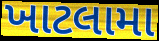
ખાટલામા